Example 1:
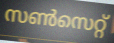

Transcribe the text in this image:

സൺസെറ്റ്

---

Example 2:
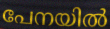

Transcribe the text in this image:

പേനയിൽ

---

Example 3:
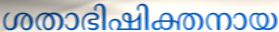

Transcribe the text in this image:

ശതാഭിഷിക്തനായ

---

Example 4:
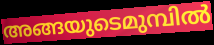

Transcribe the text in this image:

അങ്ങയുടെമുമ്പിൽ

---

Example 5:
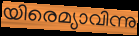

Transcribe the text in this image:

യിരെമ്യാവിന്നു